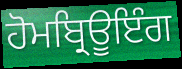
ਹੋਮਬ੍ਰਿਊਇੰਗ